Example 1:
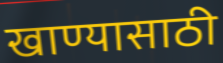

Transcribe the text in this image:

खाण्यासाठी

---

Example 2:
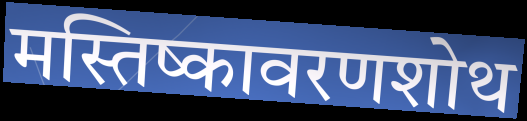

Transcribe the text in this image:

मस्तिष्कावरणशोथ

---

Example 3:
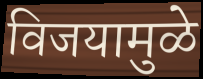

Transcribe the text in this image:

विजयामुळे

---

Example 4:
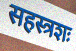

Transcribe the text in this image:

सहस्त्रशः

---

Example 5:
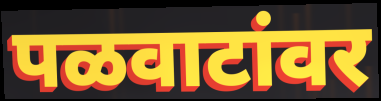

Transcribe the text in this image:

पळवाटांवर